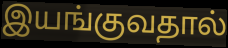
இயங்குவதால்